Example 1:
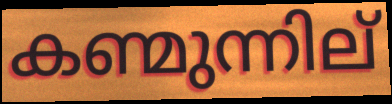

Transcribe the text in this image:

കണ്മുന്നില്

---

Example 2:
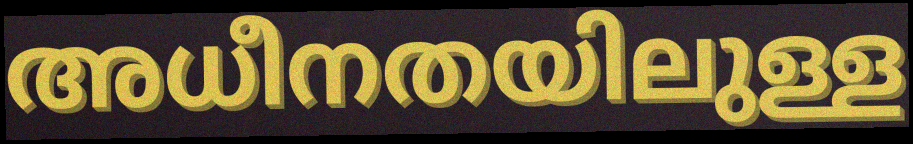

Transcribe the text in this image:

അധീനതയിലുള്ള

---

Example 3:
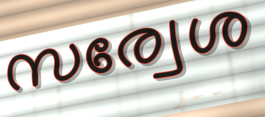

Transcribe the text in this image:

സര്വേശ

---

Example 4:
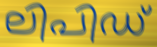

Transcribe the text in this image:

ലിപിഡ്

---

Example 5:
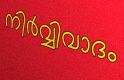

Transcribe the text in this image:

നിർവ്വിവാദം